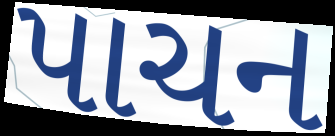
પાચન